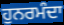
ਹੁਨਰਮੰਦਾ